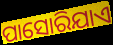
ପାସୋରିଯାଏ